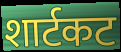
शार्टकट